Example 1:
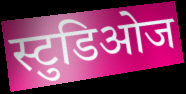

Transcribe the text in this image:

स्टुडिओज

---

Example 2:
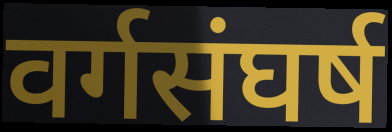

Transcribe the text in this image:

वर्गसंघर्ष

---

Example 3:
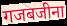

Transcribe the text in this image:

गजबजीना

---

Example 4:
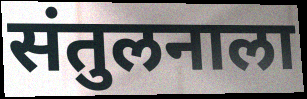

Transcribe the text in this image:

संतुलनाला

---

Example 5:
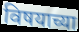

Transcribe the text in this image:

विषयाच्या